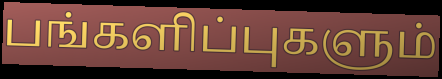
பங்களிப்புகளும்